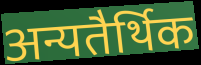
अन्यतैर्थिक